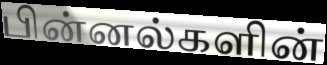
பின்னல்களின்